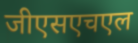
जीएसएचएल